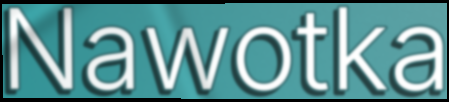
Nawotka